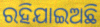
ରହିଯାଇଅଛି